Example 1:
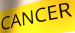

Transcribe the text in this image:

CANCER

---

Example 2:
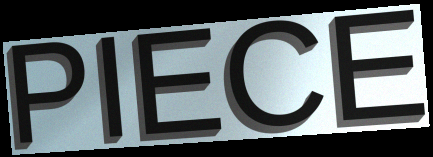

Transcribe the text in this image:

PIECE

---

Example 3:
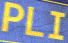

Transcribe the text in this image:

PLI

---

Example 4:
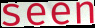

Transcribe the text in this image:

seen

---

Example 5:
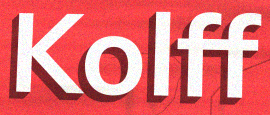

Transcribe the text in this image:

Kolff